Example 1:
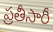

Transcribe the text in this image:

ప్రతీసారీ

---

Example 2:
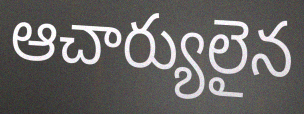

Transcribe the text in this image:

ఆచార్యులైన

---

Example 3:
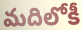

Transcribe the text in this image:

మదిలోకీ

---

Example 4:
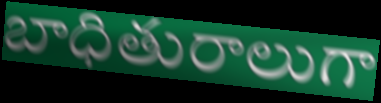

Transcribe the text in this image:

బాధితురాలుగా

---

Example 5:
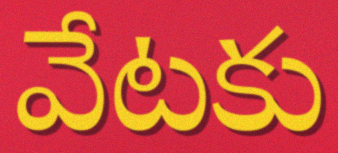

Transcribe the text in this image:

వేటకు